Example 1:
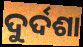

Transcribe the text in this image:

ଦୁର୍ଦଶା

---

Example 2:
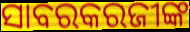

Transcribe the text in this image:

ସାବରକରଜୀଙ୍କ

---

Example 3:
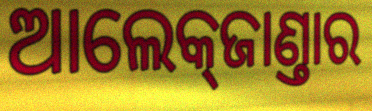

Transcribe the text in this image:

ଆଲେକ୍‌ଜାଣ୍ତାର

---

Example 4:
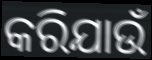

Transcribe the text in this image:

କରିଯାଉଁ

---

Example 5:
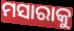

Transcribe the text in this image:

ମସାରାକୁ